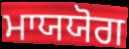
ਮਾਯਯੋਗ